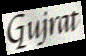
Gujrat